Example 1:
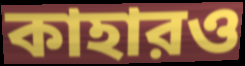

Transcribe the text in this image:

কাহারও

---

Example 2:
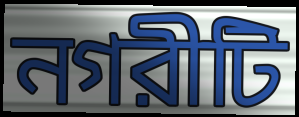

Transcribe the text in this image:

নগরীটি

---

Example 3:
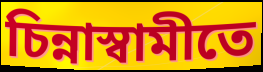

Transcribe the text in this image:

চিন্নাস্বামীতে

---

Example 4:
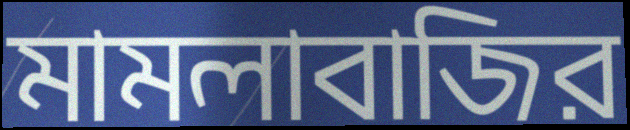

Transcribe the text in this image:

মামলাবাজির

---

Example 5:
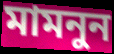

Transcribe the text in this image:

মামনুন